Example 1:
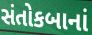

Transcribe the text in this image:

સંતોકબાનાં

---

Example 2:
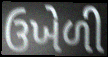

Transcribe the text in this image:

ઉખેળી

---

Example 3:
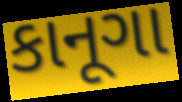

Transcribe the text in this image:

કાનૂગા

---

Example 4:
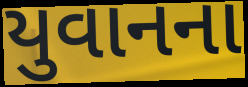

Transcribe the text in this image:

યુવાનના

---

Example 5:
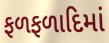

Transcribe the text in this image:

ફળફળાદિમાં